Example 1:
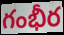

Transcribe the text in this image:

గంభీర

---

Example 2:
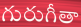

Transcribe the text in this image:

గురుగీతా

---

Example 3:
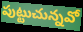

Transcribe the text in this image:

పుట్టుచున్నవో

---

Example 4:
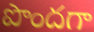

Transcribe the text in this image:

పొందగా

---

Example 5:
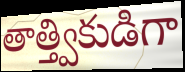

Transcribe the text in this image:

తాత్త్వికుడిగా